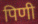
पिणी